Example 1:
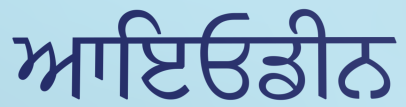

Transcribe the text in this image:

ਆਇਓਡੀਨ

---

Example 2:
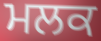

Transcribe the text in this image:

ਮਲਕ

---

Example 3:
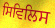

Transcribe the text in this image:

ਸਿਵਿਲਿਸ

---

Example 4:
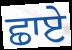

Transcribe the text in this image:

ਛਾਏ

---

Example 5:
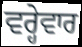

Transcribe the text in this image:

ਵਰ੍ਹੇਵਾਰ